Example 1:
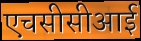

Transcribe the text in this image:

एचसीसीआई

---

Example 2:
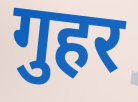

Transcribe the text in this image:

गुहर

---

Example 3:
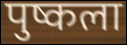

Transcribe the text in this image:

पुष्कला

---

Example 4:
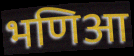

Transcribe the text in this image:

भणिआ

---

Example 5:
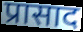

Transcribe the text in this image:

प्रासाद